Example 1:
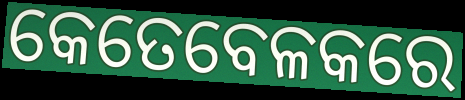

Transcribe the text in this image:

କେତେବେଳକରେ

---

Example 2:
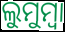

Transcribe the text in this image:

ଲୁମୁମ୍ବା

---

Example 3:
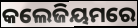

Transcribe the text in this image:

କଲେଜିୟମରେ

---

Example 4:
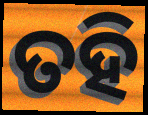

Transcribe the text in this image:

ତହି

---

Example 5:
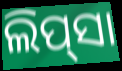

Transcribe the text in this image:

ଲିପ୍‌ସା